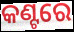
କଣ୍ଟରେ